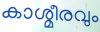
കാശ്മീരവും